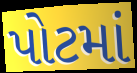
પોટમાં